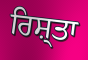
ਰਿਸ਼੍ਤਾ